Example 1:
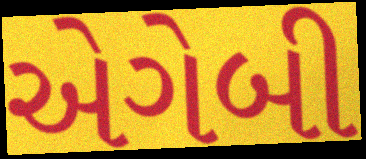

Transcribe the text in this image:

એગેબી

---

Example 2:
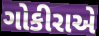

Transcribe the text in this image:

ગોકીરાએ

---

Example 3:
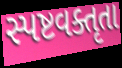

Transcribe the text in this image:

સ્પષ્ટવક્તૃતા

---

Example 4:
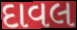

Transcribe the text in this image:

દાવલ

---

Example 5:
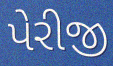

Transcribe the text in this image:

પેરીજી